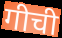
गीची